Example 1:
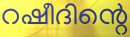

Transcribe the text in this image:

റഷീദിന്റെ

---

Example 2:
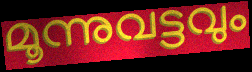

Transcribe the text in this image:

മൂന്നുവട്ടവും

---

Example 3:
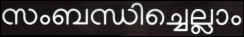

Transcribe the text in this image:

സംബന്ധിച്ചെല്ലാം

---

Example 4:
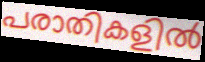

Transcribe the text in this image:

പരാതികളിൽ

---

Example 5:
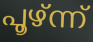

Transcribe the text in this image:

പൂഴ്ന്ന്